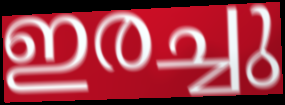
ഇരച്ചു